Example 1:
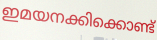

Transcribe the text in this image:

ഇമയനക്കിക്കൊണ്ട്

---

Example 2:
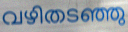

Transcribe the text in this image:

വഴിതടഞ്ഞു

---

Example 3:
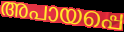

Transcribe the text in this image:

അപായപ്പെ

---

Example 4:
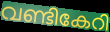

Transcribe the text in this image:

വണ്ടികേറി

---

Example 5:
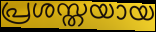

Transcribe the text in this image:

പ്രശസ്തയായ